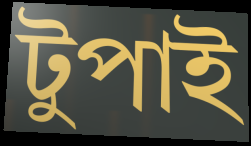
টুপাই